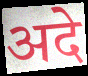
अदे